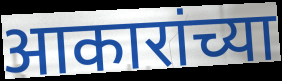
आकारांच्या